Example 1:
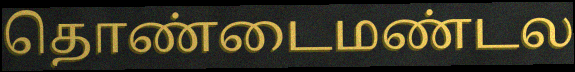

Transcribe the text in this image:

தொண்டைமண்டல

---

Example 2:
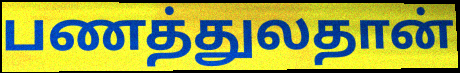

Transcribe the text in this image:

பணத்துலதான்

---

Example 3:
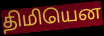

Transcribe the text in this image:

திமியென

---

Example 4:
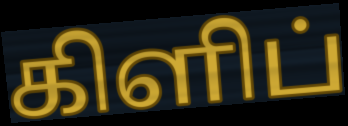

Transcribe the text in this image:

கிளிப்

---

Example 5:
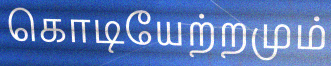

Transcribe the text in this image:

கொடியேற்றமும்